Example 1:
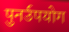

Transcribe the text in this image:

पुनर्उपयोग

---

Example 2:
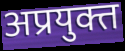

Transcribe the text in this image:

अप्रयुक्त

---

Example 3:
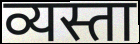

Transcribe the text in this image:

व्यस्ता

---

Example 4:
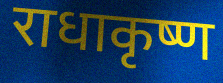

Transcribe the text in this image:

राधाकृष्ण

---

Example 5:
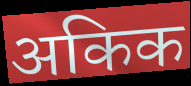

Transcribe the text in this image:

अकिक